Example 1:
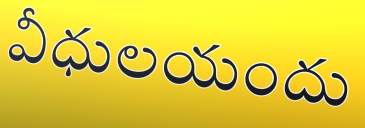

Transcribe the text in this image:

వీధులయందు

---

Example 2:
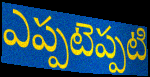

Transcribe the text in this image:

ఎప్పటెప్పటి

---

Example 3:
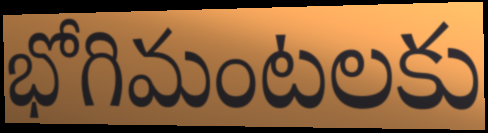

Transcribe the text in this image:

భోగిమంటలకు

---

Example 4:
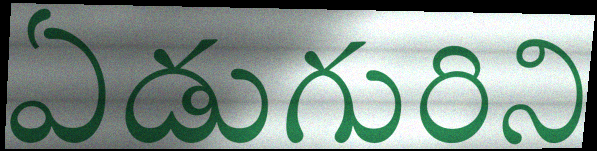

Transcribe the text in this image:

ఏడుగురిని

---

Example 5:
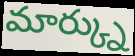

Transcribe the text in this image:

మార్క్ను